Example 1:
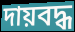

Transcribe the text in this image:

দায়বদ্ধ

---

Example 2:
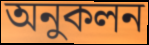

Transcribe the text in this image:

অনুকলন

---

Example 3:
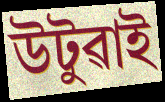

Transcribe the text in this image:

উটুৱাই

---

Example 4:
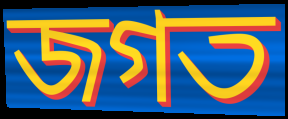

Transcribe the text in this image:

জগত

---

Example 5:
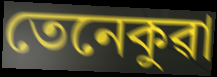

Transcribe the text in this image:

তেনেকুৱা